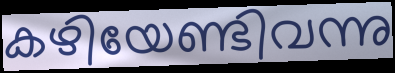
കഴിയേണ്ടിവന്നു